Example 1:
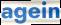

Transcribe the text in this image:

agein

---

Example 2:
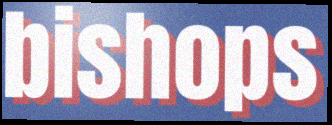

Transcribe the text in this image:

bishops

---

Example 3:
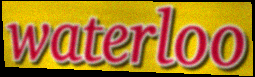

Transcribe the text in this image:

waterloo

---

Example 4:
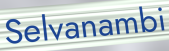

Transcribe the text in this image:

Selvanambi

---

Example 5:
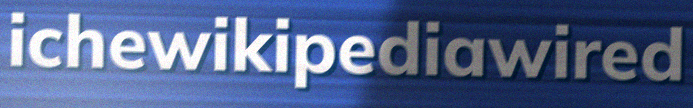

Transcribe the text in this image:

ichewikipediawired